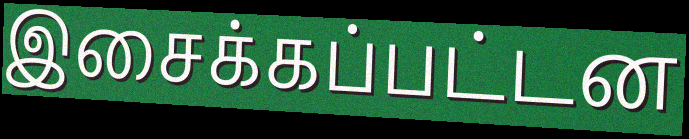
இசைக்கப்பட்டன